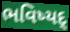
ભવિષ્યદ્